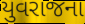
યુવરાજના